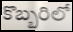
కొబ్బరిలో